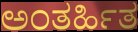
ಅಂತರ್ಹಿತ